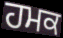
ਹਮਕ